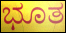
ಭೂತ